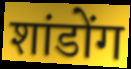
शांडोंग